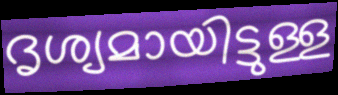
ദൃശ്യമായിട്ടുള്ള